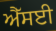
ਐੱਸਈ